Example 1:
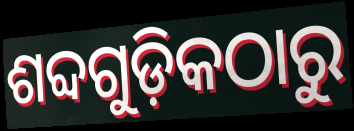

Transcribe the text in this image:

ଶବ୍ଦଗୁଡ଼ିକଠାରୁ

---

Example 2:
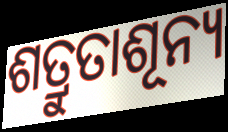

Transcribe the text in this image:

ଶତ୍ରୁତାଶୂନ୍ୟ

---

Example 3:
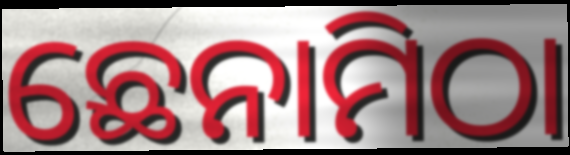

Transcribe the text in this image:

ଛେନାମିଠା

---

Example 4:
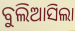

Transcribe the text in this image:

ବୁଲିଆସିଲା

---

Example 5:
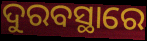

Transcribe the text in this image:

ଦୁରବସ୍ଥାରେ